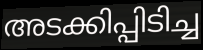
അടക്കിപ്പിടിച്ച